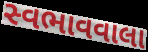
સ્વભાવવાલા